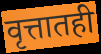
वृत्तातही